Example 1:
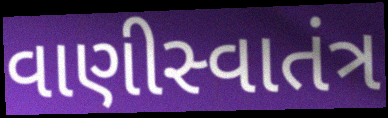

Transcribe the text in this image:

વાણીસ્વાતંત્ર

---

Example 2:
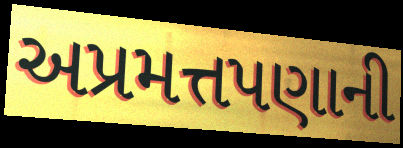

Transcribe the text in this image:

અપ્રમત્તપણાની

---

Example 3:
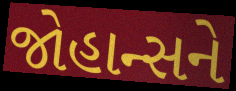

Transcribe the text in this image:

જોહાન્સને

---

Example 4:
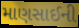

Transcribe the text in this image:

માણસાઈની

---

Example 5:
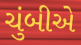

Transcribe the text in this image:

ચુંબીએ